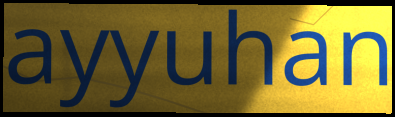
ayyuhan